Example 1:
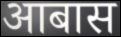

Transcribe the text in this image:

आबास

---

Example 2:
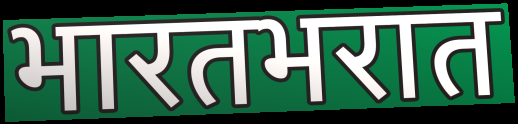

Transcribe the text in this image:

भारतभरात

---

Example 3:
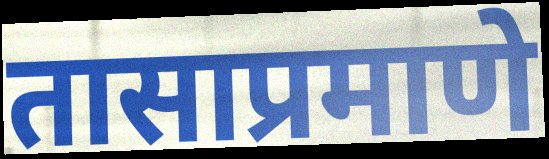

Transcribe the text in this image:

तासाप्रमाणे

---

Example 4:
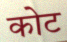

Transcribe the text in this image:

कोट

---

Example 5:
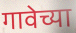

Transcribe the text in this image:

गावेच्या